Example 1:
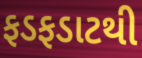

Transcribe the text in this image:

ફડફડાટથી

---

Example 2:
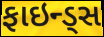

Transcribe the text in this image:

ફાઇન્ડ્સ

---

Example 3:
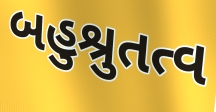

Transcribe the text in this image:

બહુશ્રુતત્વ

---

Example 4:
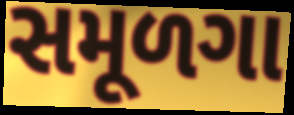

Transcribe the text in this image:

સમૂળગા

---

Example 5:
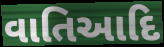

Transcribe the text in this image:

વાતિઆદિ